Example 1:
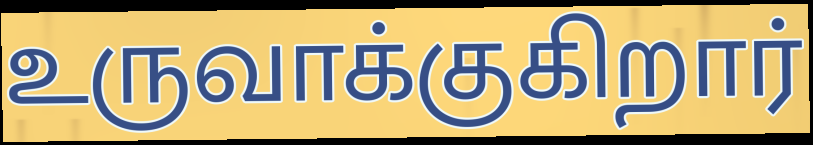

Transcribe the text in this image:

உருவாக்குகிறார்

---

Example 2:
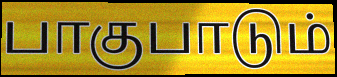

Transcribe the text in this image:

பாகுபாடும்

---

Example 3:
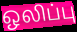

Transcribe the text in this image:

ஒலிப்பு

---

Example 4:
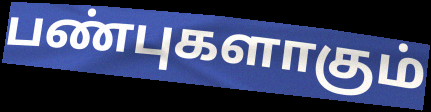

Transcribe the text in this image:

பண்புகளாகும்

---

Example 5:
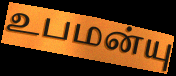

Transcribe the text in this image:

உபமன்யு